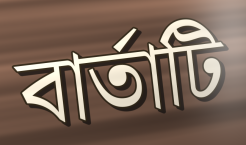
বার্তাটি